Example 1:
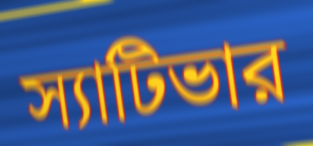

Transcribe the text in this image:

স্যাটিভার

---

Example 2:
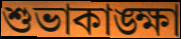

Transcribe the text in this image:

শুভাকাঙ্ক্ষা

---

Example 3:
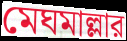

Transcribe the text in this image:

মেঘমাল্লার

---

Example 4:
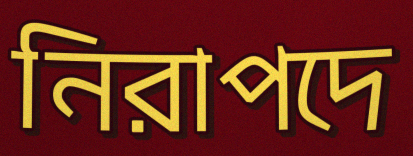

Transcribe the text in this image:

নিরাপদে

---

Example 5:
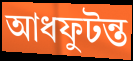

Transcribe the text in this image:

আধফুটন্ত